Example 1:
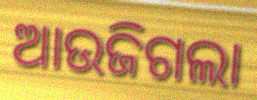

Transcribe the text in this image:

ଆଉଜିଗଲା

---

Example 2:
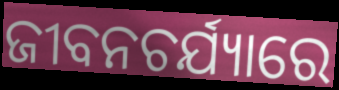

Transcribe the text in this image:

ଜୀବନଚର୍ଯ୍ୟାରେ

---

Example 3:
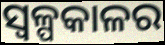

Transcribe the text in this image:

ସ୍ୱଳ୍ପକାଳର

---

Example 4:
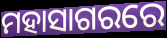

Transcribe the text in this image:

ମହାସାଗରରେ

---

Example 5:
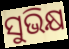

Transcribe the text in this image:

ସୁଭିକ୍ଷ